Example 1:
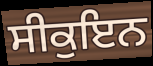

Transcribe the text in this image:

ਸੀਕੁਇਨ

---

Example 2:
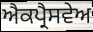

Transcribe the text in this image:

ਐਕਪ੍ਰੈਸਵੇਅ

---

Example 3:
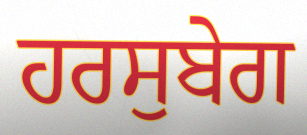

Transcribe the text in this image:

ਹਰਸੁਬੇਗ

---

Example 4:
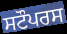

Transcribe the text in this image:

ਸਟੌਪਰਸ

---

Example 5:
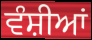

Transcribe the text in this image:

ਵੰਸ਼ੀਆਂ